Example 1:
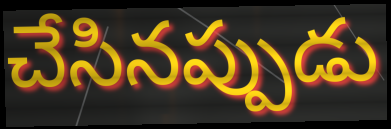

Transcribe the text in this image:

చేసినప్పుడు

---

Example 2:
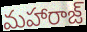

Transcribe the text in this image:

మహారాజ్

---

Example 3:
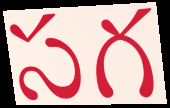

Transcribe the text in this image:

సగ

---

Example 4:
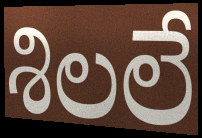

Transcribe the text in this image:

శిలలే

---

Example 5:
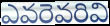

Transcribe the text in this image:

ఎవరెవరివి